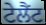
ਟੇਲੈਂਟ